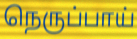
நெருப்பாய்